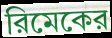
রিমেকের